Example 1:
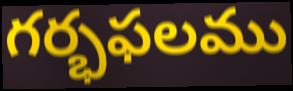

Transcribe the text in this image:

గర్భఫలము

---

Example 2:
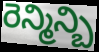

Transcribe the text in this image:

రెన్మిన్బి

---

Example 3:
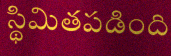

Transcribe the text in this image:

స్థిమితపడింది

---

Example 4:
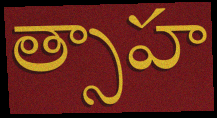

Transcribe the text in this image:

త్సాహ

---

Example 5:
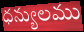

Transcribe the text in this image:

ధన్యులము